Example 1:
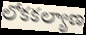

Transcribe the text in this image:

లోకకల్యాణ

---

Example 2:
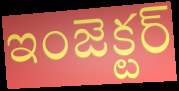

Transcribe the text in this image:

ఇంజెక్టర్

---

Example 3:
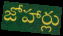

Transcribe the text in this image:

జోహార్లు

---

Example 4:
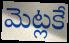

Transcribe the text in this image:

మెట్లకే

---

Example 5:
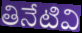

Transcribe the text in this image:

తినేటివి